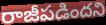
రాజీపడిందని